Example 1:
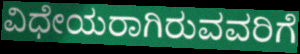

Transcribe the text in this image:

ವಿಧೇಯರಾಗಿರುವವರಿಗೆ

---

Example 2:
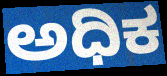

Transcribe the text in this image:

ಅಧಿಕ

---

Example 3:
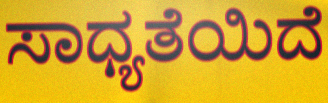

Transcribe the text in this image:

ಸಾಧ್ಯತೆಯಿದೆ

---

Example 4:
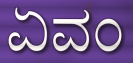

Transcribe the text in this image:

ಏವಂ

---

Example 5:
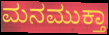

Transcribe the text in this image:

ಮನಮುಕ್ತಾ